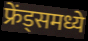
फ्रेंड्समध्ये